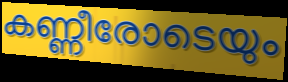
കണ്ണീരോടെയും